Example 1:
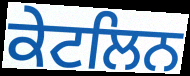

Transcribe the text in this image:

ਕੇਟਲਿਨ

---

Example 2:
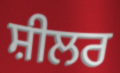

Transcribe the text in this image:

ਸ਼ੀਲਰ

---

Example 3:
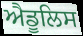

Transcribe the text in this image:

ਐਡੂਲਿਸ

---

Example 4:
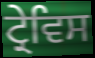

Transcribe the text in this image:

ਟ੍ਰੇਵਿਸ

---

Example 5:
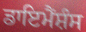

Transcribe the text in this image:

ਡਾਇਮੈਂਸ਼ੰਸ